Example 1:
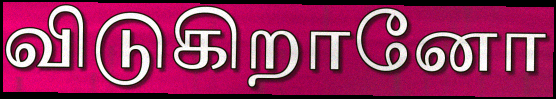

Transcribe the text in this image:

விடுகிறானோ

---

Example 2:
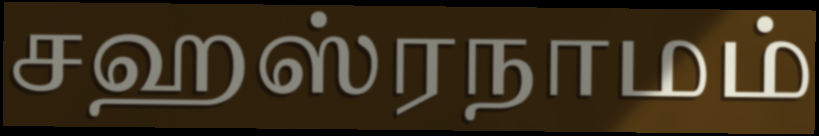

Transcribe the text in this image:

சஹஸ்ரநாமம்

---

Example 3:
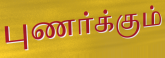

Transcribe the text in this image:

புணர்க்கும்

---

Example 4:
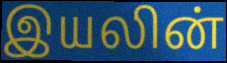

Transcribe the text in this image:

இயலின்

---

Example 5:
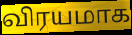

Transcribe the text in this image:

விரயமாக